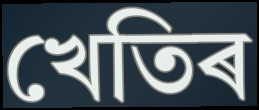
খেতিৰ